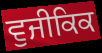
ਵੁਜੀਕਿਕ